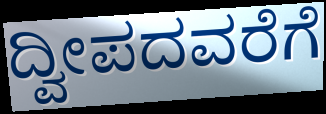
ದ್ವೀಪದವರೆಗೆ